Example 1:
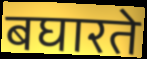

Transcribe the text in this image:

बघारते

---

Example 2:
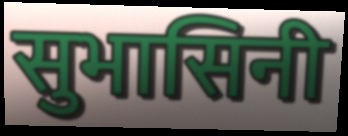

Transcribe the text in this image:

सुभासिनी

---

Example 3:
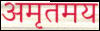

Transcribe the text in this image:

अमृतमय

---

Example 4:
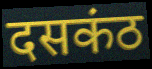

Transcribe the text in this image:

दसकंठ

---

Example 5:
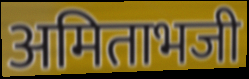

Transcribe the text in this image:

अमिताभजी